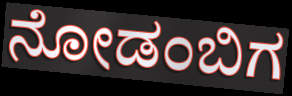
ನೋಡಂಬಿಗ